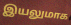
இயலுமாக